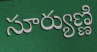
సూర్యుణ్ణి